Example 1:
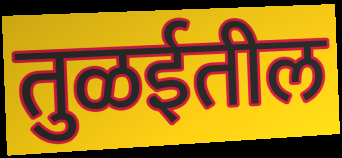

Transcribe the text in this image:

तुळईतील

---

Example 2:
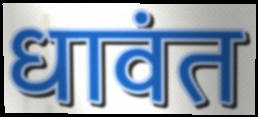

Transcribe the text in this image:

धावंत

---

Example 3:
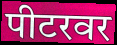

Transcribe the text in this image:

पीटरवर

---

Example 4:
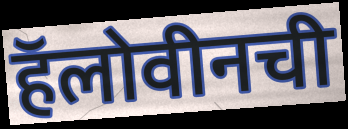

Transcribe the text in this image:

हॅलोवीनची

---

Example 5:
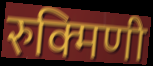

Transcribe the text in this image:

रुक्मिणी